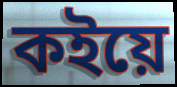
কইয়ে